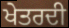
ਖੇਤਰਦੀ